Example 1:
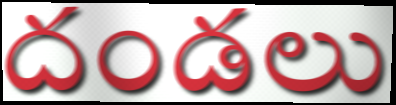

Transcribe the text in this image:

దండలు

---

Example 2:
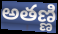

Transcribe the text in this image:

అతణ్ణి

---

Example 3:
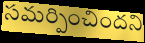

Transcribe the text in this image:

సమర్పించిందని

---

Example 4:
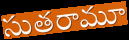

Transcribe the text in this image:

సుతరామూ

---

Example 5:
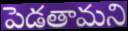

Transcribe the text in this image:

పెడతామని